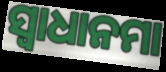
ସ୍ଵାଧାନମା